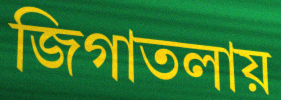
জিগাতলায়